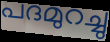
പദമുറച്ചു